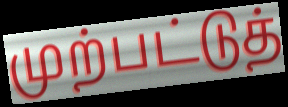
முற்பட்டுத்